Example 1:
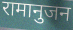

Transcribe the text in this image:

रामानुजन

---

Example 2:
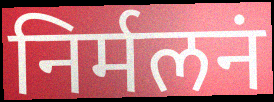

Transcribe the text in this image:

निर्मलनं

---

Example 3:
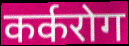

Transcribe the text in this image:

कर्करोग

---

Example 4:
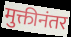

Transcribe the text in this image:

मुक्तीनंतर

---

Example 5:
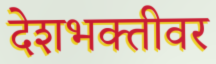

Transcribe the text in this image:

देशभक्तीवर